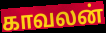
காவலன்